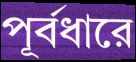
পূর্বধারে